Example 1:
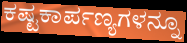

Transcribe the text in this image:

ಕಷ್ಟಕಾರ್ಪಣ್ಯಗಳನ್ನೂ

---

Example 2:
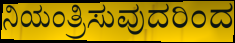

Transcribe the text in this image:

ನಿಯಂತ್ರಿಸುವುದರಿಂದ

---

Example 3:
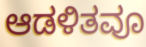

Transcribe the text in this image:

ಆಡಳಿತವೂ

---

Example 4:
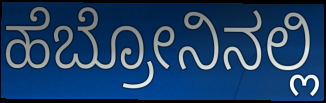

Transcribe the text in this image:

ಹೆಬ್ರೋನಿನಲ್ಲಿ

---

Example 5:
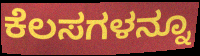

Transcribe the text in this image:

ಕೆಲಸಗಳನ್ನೂ